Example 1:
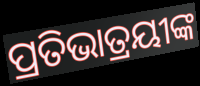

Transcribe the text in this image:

ପ୍ରତିଭାତ୍ରୟୀଙ୍କ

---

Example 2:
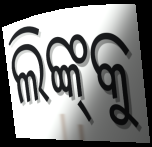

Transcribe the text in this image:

ଲିଙ୍କ୍‌କୁ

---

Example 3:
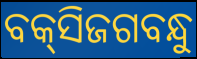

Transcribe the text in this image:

ବକ୍‌ସିଜଗବନ୍ଧୁ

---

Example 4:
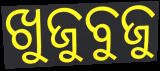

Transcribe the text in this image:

ଖୁଜୁବୁଜୁ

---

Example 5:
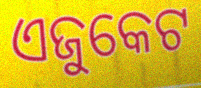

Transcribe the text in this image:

ଏଜୁକେଟ